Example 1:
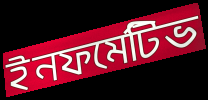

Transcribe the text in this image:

ইনফর্মেটিভ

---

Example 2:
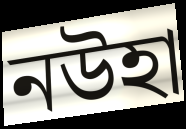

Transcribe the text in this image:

নউহা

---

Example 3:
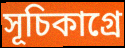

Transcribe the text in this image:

সূচিকাগ্রে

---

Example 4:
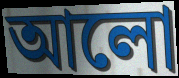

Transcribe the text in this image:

আলো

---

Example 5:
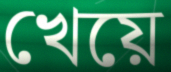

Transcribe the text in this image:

খেয়ে